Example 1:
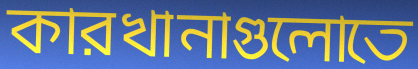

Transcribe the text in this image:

কারখানাগুলোতে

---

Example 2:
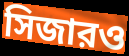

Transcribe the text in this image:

সিজারও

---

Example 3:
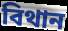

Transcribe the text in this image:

বিথান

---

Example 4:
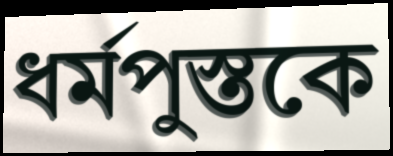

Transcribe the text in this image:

ধর্মপুস্তকে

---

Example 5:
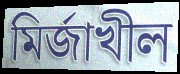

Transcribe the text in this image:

মির্জাখীল